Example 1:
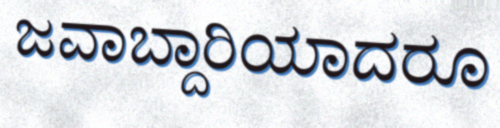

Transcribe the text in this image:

ಜವಾಬ್ದಾರಿಯಾದರೂ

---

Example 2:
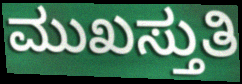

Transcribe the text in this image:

ಮುಖಸ್ತುತಿ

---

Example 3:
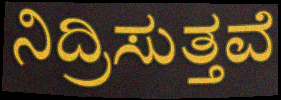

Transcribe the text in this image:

ನಿದ್ರಿಸುತ್ತವೆ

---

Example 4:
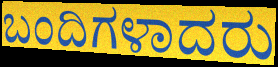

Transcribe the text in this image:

ಬಂದಿಗಳಾದರು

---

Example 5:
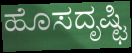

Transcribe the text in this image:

ಹೊಸದೃಷ್ಟಿ